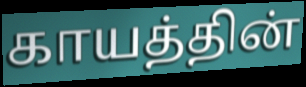
காயத்தின்